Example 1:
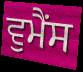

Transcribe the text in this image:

ਵੁਮੈਂਸ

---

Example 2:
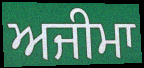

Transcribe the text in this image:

ਅਜੀਮਾ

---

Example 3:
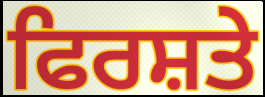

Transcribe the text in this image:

ਫਿਰਸ਼ਤੇ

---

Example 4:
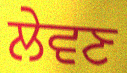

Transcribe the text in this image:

ਲੇਵਣ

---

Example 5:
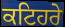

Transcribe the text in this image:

ਕਟਿਹਰੇ